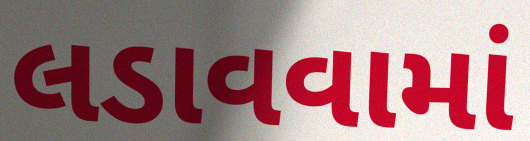
લડાવવામાં